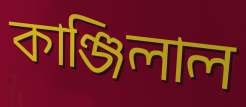
কাঞ্জিলাল